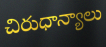
చిరుధాన్యాలు